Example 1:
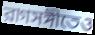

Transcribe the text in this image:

রাগসঙ্গীতেও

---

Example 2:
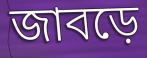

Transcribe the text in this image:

জাবড়ে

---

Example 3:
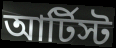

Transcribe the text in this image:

আর্টিস্ট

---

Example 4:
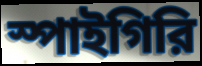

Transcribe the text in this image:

স্পাইগিরি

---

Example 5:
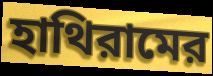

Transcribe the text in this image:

হাথিরামের